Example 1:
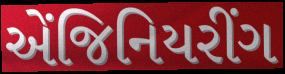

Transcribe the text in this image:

એંજિનિયરીંગ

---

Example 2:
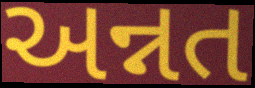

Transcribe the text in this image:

અન્નત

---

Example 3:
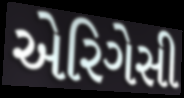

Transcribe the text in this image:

એરિગેસી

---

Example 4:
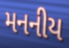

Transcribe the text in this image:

મનનીય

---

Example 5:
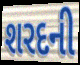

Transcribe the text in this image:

શરદની